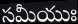
సమీయుః